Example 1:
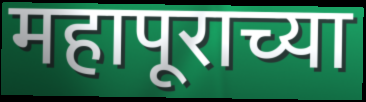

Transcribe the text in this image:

महापूराच्या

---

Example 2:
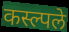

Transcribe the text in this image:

कस्ल्पले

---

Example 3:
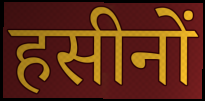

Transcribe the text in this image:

हसीनों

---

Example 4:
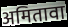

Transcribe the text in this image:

अमितावा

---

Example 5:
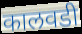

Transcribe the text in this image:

कालवडी